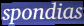
spondias